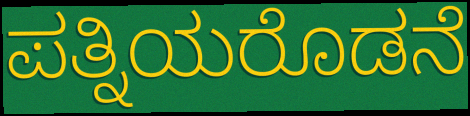
ಪತ್ನಿಯರೊಡನೆ